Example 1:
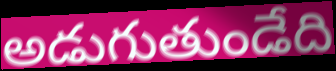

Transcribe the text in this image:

అడుగుతుండేది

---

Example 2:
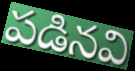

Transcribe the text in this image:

పడినవి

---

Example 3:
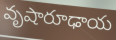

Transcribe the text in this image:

వృషారూఢాయ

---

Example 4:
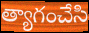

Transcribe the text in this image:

త్యాగంచేసి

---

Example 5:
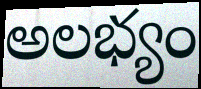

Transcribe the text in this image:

అలభ్యం